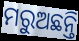
ମରୁଅଛନ୍ତି